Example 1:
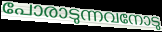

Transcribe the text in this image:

പോരാടുന്നവനോടു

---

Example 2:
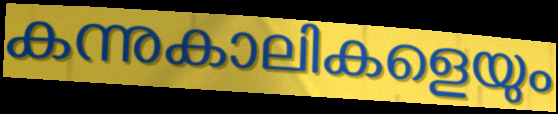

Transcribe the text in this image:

കന്നുകാലികളെയും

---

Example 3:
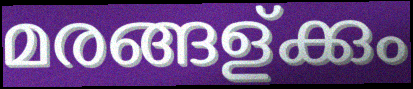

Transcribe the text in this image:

മരങ്ങള്ക്കും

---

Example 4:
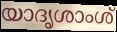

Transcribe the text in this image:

യാദൃശാംശ്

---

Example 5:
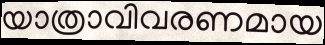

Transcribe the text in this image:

യാത്രാവിവരണമായ